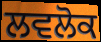
ਲਵਲੋਕ